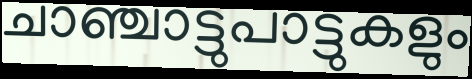
ചാഞ്ചാട്ടുപാട്ടുകളും